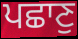
ਪਛਾਣੁ